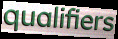
qualifiers